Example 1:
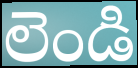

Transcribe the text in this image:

లెండి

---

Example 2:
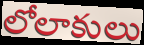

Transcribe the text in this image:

లోలాకులు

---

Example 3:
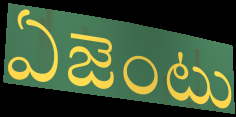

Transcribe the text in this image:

ఏజెంటు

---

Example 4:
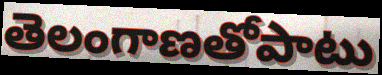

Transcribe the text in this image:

తెలంగాణతోపాటు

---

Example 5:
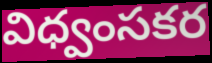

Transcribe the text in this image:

విధ్వంసకర